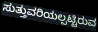
ಸುತ್ತುವರಿಯಲ್ಪಟ್ಟಿರುವ